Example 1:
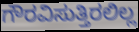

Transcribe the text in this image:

ಗೌರವಿಸುತ್ತಿರಲಿಲ್ಲ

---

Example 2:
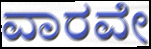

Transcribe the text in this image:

ವಾರವೇ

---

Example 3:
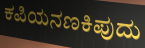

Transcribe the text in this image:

ಕಪಿಯನಣಕಿಪುದು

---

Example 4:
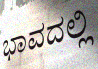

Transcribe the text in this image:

ಭಾವದಲ್ಲಿ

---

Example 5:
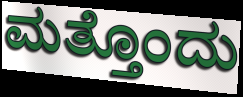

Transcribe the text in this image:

ಮತ್ತೊಂದು